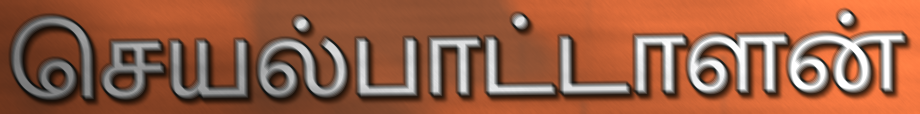
செயல்பாட்டாளன்